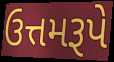
ઉત્તમરૂપે